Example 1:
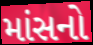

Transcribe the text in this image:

માંસનો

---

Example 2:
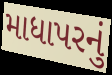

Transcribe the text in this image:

માધાપરનું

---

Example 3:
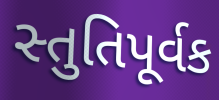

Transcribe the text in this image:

સ્તુતિપૂર્વક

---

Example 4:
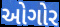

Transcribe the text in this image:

ઓગોર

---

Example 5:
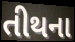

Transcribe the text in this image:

તીથના